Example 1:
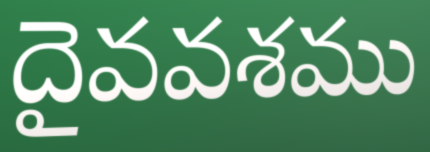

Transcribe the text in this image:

దైవవశము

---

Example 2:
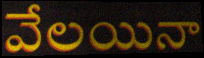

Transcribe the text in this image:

వేలయినా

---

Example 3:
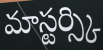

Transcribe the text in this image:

మాస్టర్స్కి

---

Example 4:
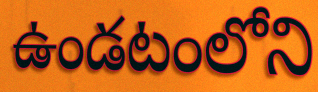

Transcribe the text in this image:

ఉండటంలోని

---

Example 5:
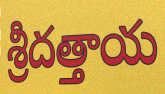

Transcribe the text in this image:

శ్రీదత్తాయ